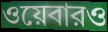
ওয়েবারও